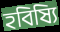
হবিষ্যি